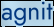
agnit